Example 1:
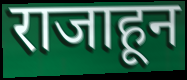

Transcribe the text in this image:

राजाहून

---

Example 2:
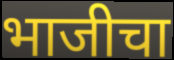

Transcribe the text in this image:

भाजीचा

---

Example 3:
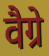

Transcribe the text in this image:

वैग्रे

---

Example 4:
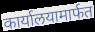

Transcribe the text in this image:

कार्यालयामार्फत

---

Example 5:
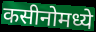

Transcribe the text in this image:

कसीनोमध्ये